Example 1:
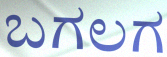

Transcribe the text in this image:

ಬಗಲಗ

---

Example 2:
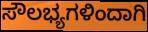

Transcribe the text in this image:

ಸೌಲಭ್ಯಗಳಿಂದಾಗಿ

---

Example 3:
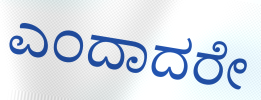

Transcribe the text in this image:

ಎಂದಾದರೇ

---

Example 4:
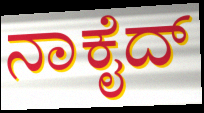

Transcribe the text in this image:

ನಾಕೈದ್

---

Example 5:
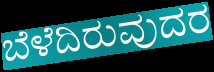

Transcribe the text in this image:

ಬೆಳೆದಿರುವುದರ